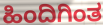
ಹಿಂದಿಗಿಂತ